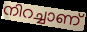
നിറച്ചാണ്